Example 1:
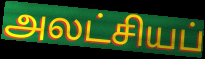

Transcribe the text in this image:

அலட்சியப்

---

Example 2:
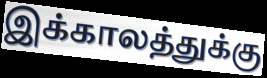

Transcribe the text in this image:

இக்காலத்துக்கு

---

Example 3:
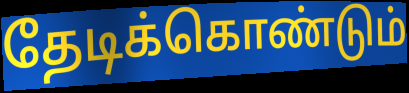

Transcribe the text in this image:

தேடிக்கொண்டும்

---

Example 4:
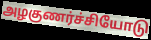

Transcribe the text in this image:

அழகுணர்ச்சியோடு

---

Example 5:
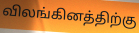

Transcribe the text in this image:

விலங்கினத்திற்கு